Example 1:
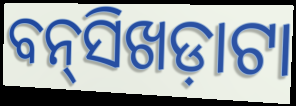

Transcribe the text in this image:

ବନ୍‌ସିଖଡ଼ାଟା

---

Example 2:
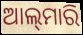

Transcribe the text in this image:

ଆଲ୍‌ମାରି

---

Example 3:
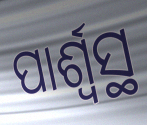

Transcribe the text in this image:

ପାର୍ଶ୍ବସ୍ଥ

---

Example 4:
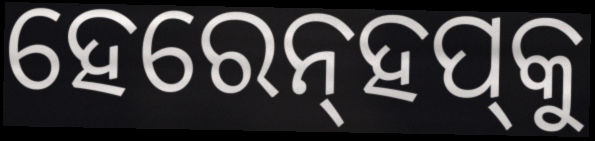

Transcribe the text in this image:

ହେରେନ୍‌ହପ୍‌କୁ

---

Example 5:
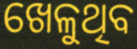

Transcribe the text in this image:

ଖେଳୁଥିବ